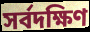
সর্বদক্ষিণ